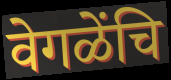
वेगळेंचि